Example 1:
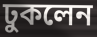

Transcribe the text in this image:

ঢুকলেন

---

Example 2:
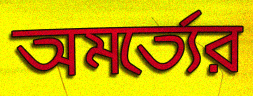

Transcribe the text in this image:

অমর্ত্যের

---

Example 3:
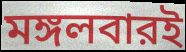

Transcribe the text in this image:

মঙ্গলবারই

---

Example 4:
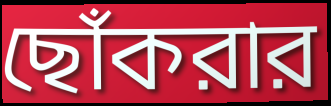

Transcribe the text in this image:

ছোঁকরার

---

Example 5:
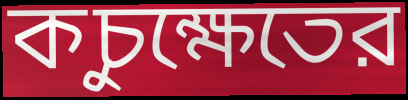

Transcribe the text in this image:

কচুক্ষেতের